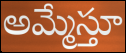
అమ్మేస్తూ